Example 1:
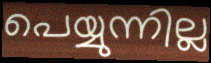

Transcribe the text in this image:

പെയ്യുന്നില്ല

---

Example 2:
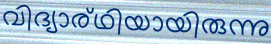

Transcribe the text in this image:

വിദ്യാര്ഥിയായിരുന്നു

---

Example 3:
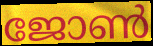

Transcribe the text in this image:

ജോൺ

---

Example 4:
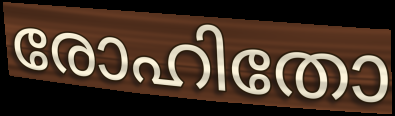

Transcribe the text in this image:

രോഹിതോ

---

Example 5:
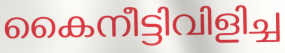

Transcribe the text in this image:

കൈനീട്ടിവിളിച്ച